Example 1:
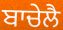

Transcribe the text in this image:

ਬਾਚੇਲੈ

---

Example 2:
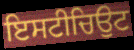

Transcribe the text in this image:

ਇਸਟੀਚਿਉਟ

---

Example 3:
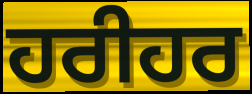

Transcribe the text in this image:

ਹਰੀਹਰ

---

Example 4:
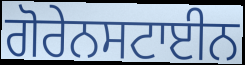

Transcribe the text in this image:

ਗੋਰੇਨਸਟਾਈਨ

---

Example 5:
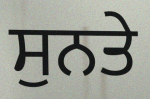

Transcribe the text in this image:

ਸੁਨਤੇ